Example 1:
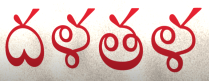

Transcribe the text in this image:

దళతళ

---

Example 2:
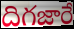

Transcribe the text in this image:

దిగజారే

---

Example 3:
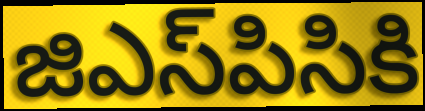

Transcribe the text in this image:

జిఎస్‌పిసికి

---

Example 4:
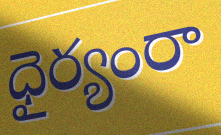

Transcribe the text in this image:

ధైర్యంరా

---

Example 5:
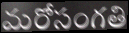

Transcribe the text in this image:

మరోసంగతి